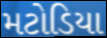
મટોડિયા